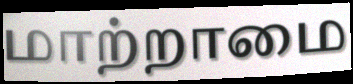
மாற்றாமை